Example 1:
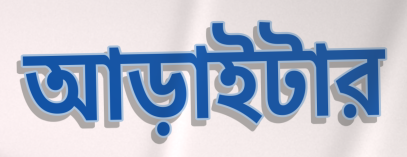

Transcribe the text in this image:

আড়াইটার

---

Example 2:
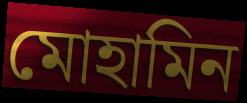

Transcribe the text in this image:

মোহামিন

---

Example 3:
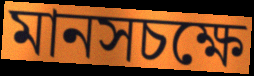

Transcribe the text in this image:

মানসচক্ষে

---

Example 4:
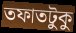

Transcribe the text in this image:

তফাতটুকু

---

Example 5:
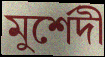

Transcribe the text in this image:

মুর্শেদী